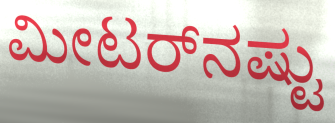
ಮೀಟರ್‌ನಷ್ಟು